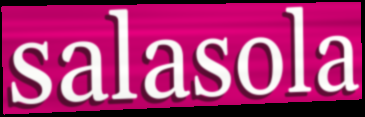
salasola